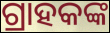
ଗ୍ରାହକଙ୍କ